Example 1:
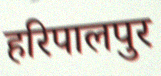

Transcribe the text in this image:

हरिपालपुर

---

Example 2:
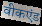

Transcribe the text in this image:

वीकएंड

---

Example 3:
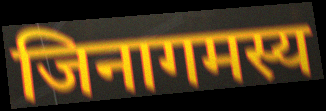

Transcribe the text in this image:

जिनागमस्य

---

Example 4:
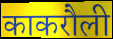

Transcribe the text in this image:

काकरौली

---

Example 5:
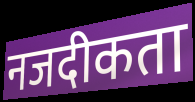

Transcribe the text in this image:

नजदीकता